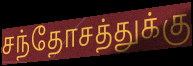
சந்தோசத்துக்கு